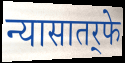
न्यासातर्फे